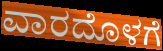
ವಾರದೊಳಗೆ